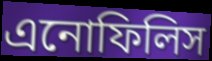
এনোফিলিস